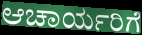
ಆಚಾರ್ಯರಿಗೆ